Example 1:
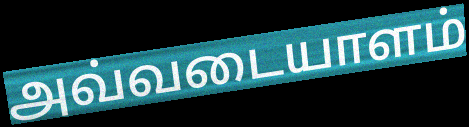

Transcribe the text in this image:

அவ்வடையாளம்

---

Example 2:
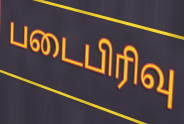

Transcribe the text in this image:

படைபிரிவு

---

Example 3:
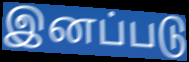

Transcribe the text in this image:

இனப்படு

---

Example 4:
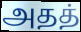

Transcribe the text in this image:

அதத்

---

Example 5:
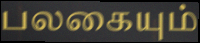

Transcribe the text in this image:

பலகையும்